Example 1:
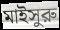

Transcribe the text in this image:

মাইসুরু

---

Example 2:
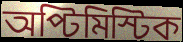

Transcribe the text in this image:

অপ্টিমিস্টিক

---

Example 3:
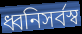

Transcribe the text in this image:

ধ্বনিসর্বস্ব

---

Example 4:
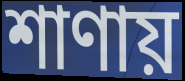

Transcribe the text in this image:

শাণায়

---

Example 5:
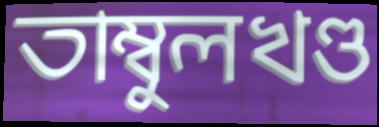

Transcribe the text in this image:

তাম্বুলখণ্ড